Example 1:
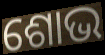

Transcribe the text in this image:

ଶୋଭ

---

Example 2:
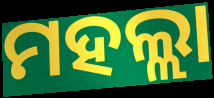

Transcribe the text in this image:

ମହଲ୍ଲା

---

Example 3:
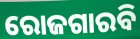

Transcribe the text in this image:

ରୋଜଗାରବି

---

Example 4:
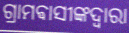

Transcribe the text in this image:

ଗ୍ରାମଵାସୀଙ୍କଦ୍ୱାରା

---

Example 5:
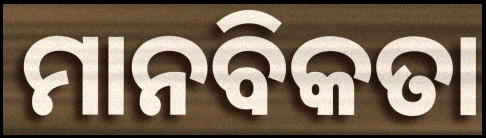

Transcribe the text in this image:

ମାନବିକତା